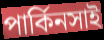
পার্কিনসাই